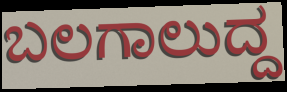
ಬಲಗಾಲುದ್ದ